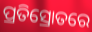
ପ୍ରତିସ୍ରୋତରେ